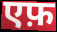
एफ़